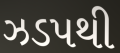
ઝડપથી